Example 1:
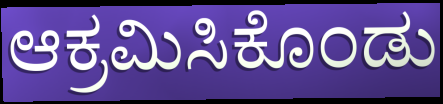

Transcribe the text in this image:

ಆಕ್ರಮಿಸಿಕೊಂಡು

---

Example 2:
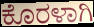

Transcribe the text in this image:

ಕೊರಳಾಗಿ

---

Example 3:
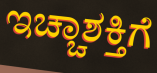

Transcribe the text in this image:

ಇಚ್ಚಾಶಕ್ತಿಗೆ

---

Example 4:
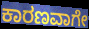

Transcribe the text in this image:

ಕಾರಣವಾಗೇ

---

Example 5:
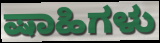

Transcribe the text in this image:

ಷಾಹಿಗಳು